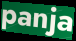
panja